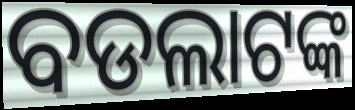
ବଡଲାଟଙ୍କ